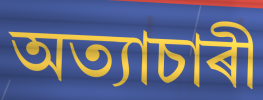
অত্যাচাৰী